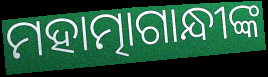
ମହାତ୍ମାଗାନ୍ଧୀଙ୍କ